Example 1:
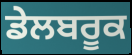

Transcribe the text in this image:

ਡੇਲਬਰੂਕ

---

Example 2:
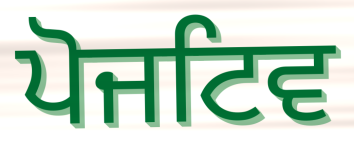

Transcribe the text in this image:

ਪੋਜਟਿਵ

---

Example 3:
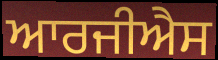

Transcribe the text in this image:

ਆਰਜੀਐਸ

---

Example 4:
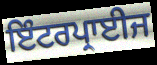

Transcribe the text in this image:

ਇੰਟਰਪ੍ਰਾਈਜ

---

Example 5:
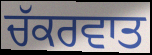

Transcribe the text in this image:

ਚੱਕਰਵਾਤ